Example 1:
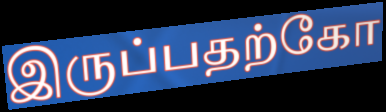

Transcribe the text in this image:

இருப்பதற்கோ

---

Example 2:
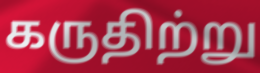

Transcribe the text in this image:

கருதிற்று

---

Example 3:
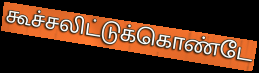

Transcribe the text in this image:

கூச்சலிட்டுக்கொண்டே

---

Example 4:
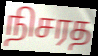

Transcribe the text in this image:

நிசரத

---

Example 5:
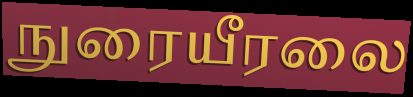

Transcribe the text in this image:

நுரையீரலை